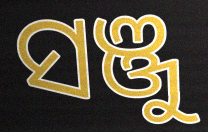
ସଞ୍ଜୁ